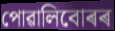
পোৱালিবোৰৰ